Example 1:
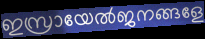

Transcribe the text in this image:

ഇസ്രായേൽജനങ്ങളേ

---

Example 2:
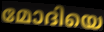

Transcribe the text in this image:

മോദിയെ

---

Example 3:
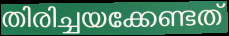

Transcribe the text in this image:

തിരിച്ചയക്കേണ്ടത്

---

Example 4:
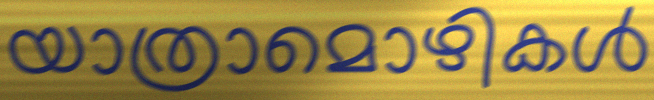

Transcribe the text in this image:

യാത്രാമൊഴികൾ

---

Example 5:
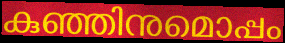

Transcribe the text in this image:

കുഞ്ഞിനുമൊപ്പം